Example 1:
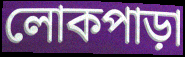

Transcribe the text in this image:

লোকপাড়া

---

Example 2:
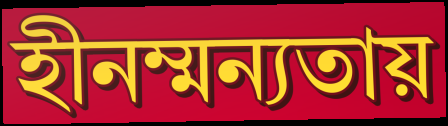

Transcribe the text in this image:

হীনম্মন্যতায়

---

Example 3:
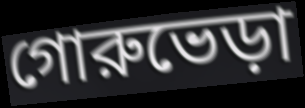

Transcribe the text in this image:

গোরুভেড়া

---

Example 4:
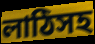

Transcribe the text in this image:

লাঠিসহ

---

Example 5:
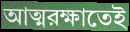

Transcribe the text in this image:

আত্মরক্ষাতেই